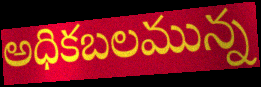
అధికబలమున్న